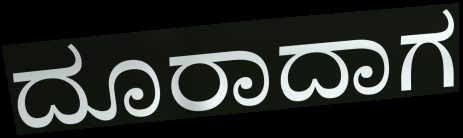
ದೂರಾದಾಗ